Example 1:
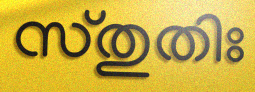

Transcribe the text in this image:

സ്തുതിഃ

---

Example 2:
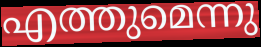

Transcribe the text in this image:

എത്തുമെന്നു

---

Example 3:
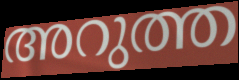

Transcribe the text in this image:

അറുത്ത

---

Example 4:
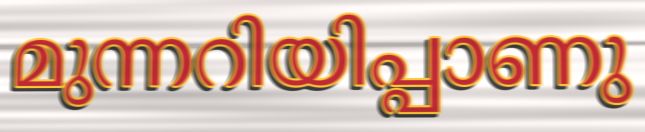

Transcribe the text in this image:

മുന്നറിയിപ്പാണു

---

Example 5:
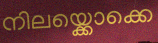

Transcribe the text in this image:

നിലയ്ക്കൊക്കെ